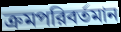
ক্রমপরিবর্তমান